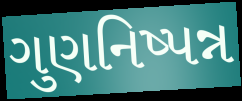
ગુણનિષ્પન્ન